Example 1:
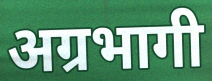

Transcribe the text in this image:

अग्रभागी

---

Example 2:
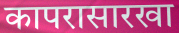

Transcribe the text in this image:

कापरासारखा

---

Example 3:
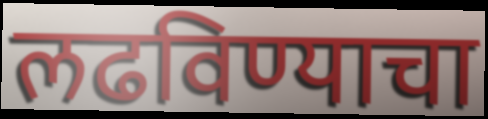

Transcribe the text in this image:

लढविण्याचा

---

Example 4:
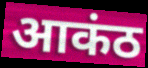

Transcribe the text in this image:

आकंठ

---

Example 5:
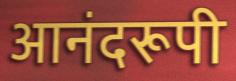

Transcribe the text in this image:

आनंदरूपी